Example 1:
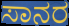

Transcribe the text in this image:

ಸಾನರ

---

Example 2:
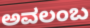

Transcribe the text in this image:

ಅವಲಂಬ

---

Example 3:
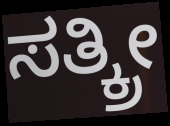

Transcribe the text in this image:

ಸತ್ಕ್ರೀ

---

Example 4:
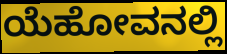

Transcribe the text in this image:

ಯೆಹೋವನಲ್ಲಿ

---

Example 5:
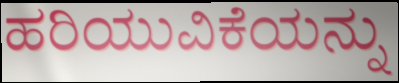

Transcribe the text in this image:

ಹರಿಯುವಿಕೆಯನ್ನು